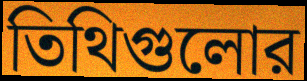
তিথিগুলোর